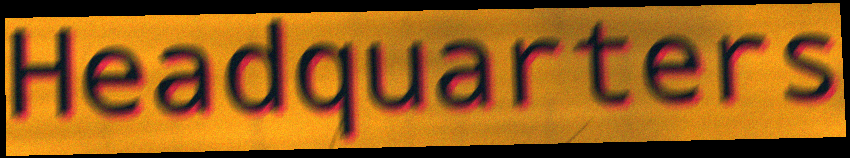
Headquarters